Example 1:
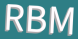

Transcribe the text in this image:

RBM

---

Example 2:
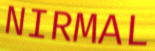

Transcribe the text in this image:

NIRMAL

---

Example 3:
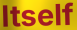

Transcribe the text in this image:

Itself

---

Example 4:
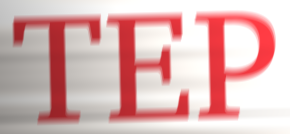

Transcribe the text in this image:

TEP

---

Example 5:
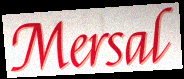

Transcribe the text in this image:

Mersal